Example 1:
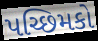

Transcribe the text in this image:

પચ્છિમકો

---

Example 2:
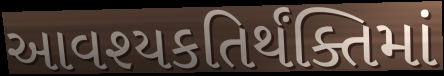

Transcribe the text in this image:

આવશ્યકતિર્થંક્તિમાં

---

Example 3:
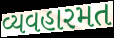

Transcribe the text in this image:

વ્યવહારમત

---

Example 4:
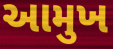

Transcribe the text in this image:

આમુખ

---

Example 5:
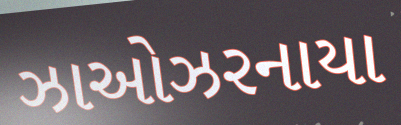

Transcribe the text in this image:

ઝાઓઝરનાયા